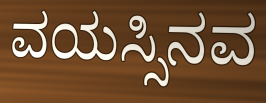
ವಯಸ್ಸಿನವ